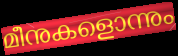
മീനുകളൊന്നും